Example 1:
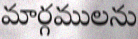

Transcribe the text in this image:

మార్గములను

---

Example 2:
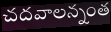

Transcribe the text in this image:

చదవాలన్నంత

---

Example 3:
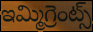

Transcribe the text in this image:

ఇమ్మిగ్రెంట్స్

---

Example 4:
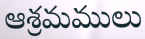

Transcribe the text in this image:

ఆశ్రమములు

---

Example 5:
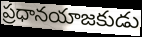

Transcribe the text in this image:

ప్రధానయాజకుడు